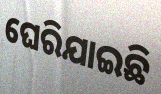
ଘେରିଯାଇଛି